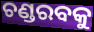
ଚଣ୍ଡରବକୁ